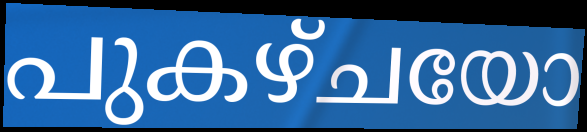
പുകഴ്ചയോ